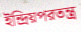
ইন্দ্রিয়পরতন্ত্র